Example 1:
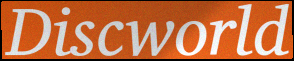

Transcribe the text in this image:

Discworld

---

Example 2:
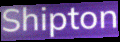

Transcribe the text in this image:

Shipton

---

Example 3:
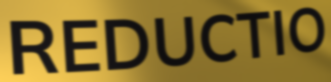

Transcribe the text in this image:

REDUCTIO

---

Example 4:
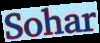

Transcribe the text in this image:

Sohar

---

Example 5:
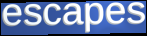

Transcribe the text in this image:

escapes